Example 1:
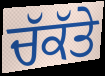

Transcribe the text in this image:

ਚੱਕੱਤੇ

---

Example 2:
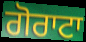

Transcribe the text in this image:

ਗੋਰਾਟਾ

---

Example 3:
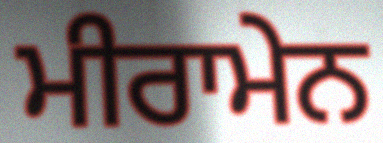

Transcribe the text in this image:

ਮੀਰਾਮੇਨ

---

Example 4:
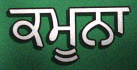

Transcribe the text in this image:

ਕਮੂਨਾ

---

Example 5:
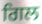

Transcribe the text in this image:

ਗਿਲ